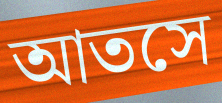
আতসে